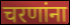
चरणांना